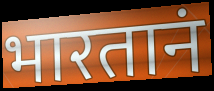
भारतानं